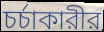
চর্চাকারীর